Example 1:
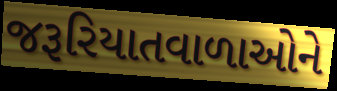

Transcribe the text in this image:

જરૂરિયાતવાળાઓને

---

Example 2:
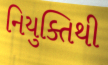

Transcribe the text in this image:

નિયુક્તિથી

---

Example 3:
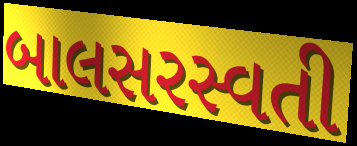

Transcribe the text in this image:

બાલસરસ્વતી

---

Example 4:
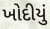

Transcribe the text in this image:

ખોદીયું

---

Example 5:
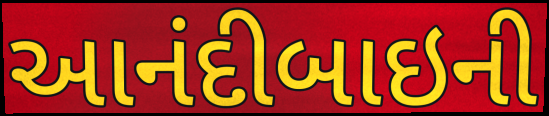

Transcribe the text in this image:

આનંદીબાઇની